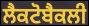
ਲੈਕਟੋਬੈਕਲੀ